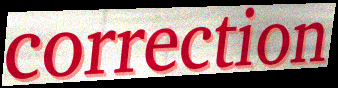
correction